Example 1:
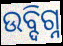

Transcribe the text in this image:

ଉବ୍ଦିଗ୍ନ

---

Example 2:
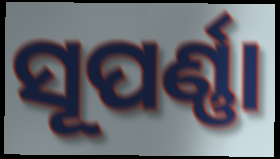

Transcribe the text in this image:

ସୂପର୍ଣ୍ଣା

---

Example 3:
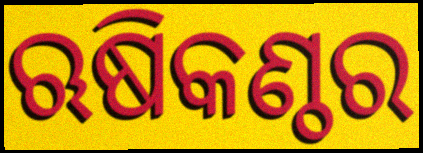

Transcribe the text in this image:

ଋଷିକଣ୍ଠର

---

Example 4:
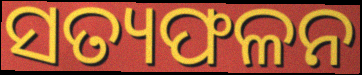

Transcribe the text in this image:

ସତ୍ୟଫଳନ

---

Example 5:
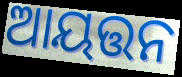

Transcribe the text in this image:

ଆୟତ୍ତନ